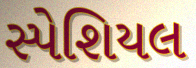
સ્પેશિયલ